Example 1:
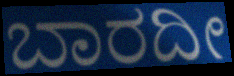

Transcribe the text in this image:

ಬಾರದೀ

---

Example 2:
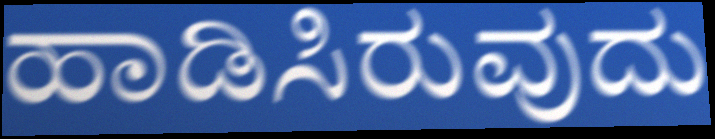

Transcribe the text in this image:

ಹಾಡಿಸಿರುವುದು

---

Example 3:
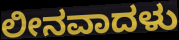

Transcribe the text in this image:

ಲೀನವಾದಳು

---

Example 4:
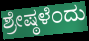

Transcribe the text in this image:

ಶ್ರೇಷ್ಠಳೆಂದು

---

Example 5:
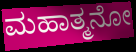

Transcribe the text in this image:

ಮಹಾತ್ಮನೋ